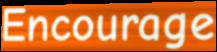
Encourage